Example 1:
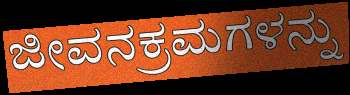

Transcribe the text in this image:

ಜೀವನಕ್ರಮಗಳನ್ನು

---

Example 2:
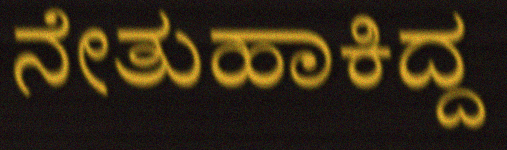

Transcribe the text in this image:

ನೇತುಹಾಕಿದ್ದ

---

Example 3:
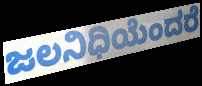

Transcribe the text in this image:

ಜಲನಿಧಿಯೆಂದರೆ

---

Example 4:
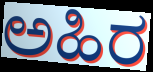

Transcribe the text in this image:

ಅಹಿರ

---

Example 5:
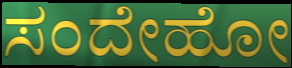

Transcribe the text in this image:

ಸಂದೇಹೋ